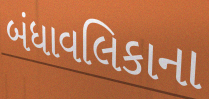
બંધાવલિકાના